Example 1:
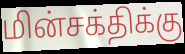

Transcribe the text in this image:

மின்சக்திக்கு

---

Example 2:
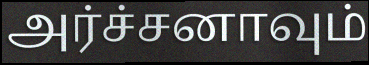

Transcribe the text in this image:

அர்ச்சனாவும்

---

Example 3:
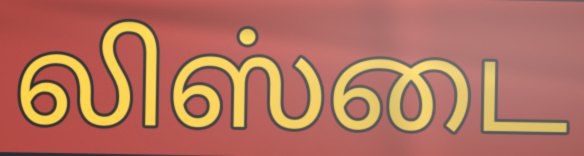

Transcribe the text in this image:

லிஸ்டை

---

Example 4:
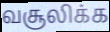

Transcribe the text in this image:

வசூலிக்க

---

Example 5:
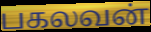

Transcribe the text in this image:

பகலவன்